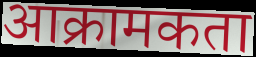
आक्रामकता